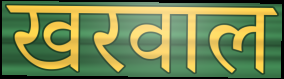
खरवाल